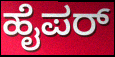
ಹೈಪರ್